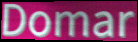
Domar